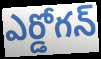
ఎర్డోగన్